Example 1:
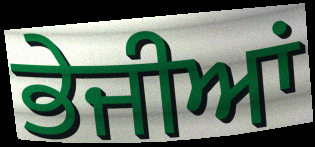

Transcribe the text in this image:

ਭੇਜੀਆਂ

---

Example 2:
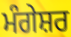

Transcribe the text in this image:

ਮੰਗੇਸ਼ਰ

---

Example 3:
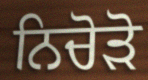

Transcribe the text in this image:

ਨਿਚੋੜੋ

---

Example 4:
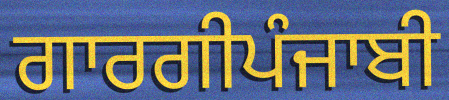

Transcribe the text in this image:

ਗਾਰਗੀਪੰਜਾਬੀ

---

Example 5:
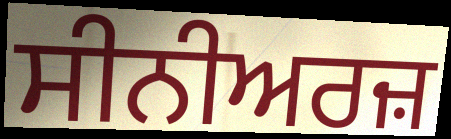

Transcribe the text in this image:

ਸੀਨੀਅਰਜ਼